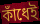
কাঁধেই